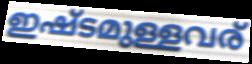
ഇഷ്ടമുള്ളവര്